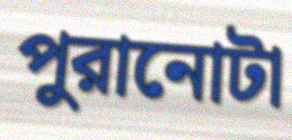
পুরানোটা